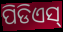
ପିଡିଏସ୍